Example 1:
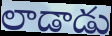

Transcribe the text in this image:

లాడాడు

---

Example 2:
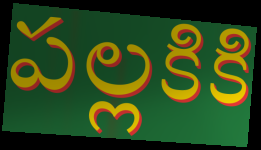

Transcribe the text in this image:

పల్లకికి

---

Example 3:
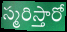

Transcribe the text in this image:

స్మరిస్తారో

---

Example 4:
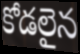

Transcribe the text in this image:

కోడలైన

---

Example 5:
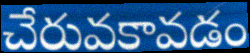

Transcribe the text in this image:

చేరువకావడం